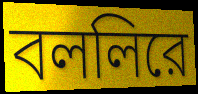
বললিরে